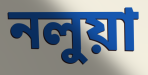
নলুয়া